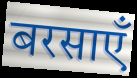
बरसाएँ